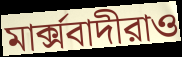
মার্ক্সবাদীরাও